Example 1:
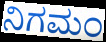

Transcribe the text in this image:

ನಿಗಮಂ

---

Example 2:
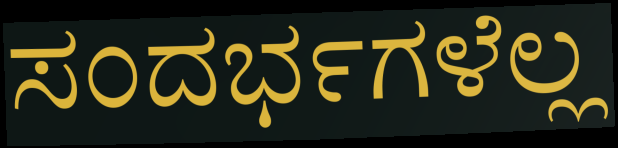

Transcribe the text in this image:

ಸಂದರ್ಭಗಳೆಲ್ಲ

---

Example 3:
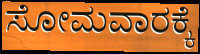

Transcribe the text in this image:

ಸೋಮವಾರಕ್ಕೆ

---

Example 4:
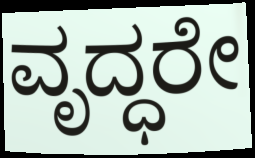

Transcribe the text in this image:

ವೃದ್ಧರೇ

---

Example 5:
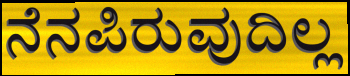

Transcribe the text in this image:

ನೆನಪಿರುವುದಿಲ್ಲ